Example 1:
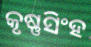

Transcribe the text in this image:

କୃଷ୍ଣସିଂହ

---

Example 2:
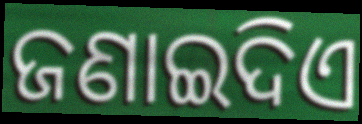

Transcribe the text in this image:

ଜଣାଇଦିଏ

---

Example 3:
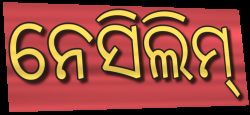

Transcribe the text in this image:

ନେସିଲିମ୍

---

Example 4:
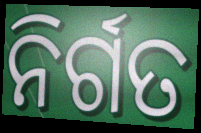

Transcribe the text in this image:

ନିର୍ଗତ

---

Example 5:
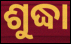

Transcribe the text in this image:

ଶୁଦ୍ଧା